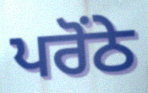
ਪਰੋਂਠੇ